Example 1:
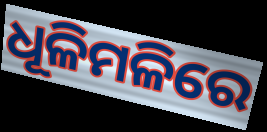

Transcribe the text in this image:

ଧୂଳିମଳିରେ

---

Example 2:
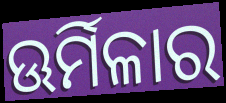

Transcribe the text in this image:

ଊର୍ମିଳାର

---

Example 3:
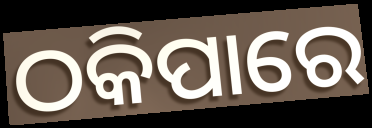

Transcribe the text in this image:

ଠକିପାରେ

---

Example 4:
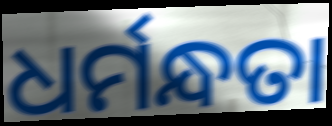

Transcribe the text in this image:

ଧର୍ମନ୍ଧତା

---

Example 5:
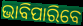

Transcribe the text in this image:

ଭାବିପାରିବେ